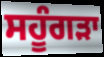
ਸਹੂੰਗੜਾ